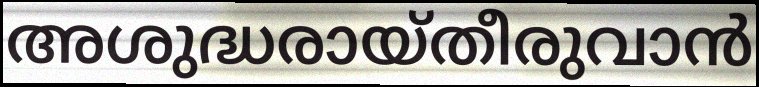
അശുദ്ധരായ്തീരുവാൻ